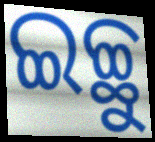
ଇଚ୍ଛୁ